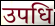
उपधि